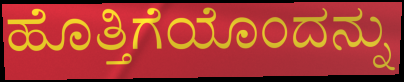
ಹೊತ್ತಿಗೆಯೊಂದನ್ನು